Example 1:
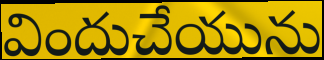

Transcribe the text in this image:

విందుచేయును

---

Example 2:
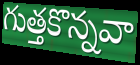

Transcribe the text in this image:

గుత్తకొన్నవా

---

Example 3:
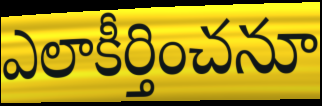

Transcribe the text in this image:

ఎలాకీర్తించనూ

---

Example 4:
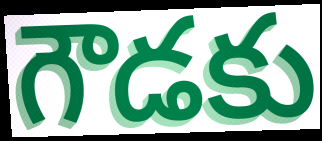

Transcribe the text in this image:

గౌడకు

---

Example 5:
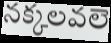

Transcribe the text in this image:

నక్కలవలె